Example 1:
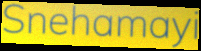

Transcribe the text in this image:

Snehamayi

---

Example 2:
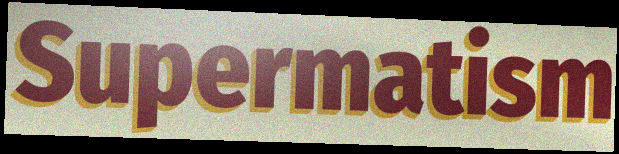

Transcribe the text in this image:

Supermatism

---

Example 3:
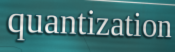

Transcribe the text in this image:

quantization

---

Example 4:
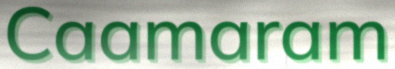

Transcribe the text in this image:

Caamaram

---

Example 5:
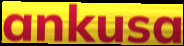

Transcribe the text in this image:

ankusa